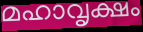
മഹാവൃക്ഷം